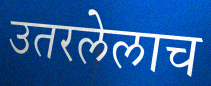
उतरलेलाच